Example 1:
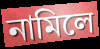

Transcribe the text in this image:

নামিলে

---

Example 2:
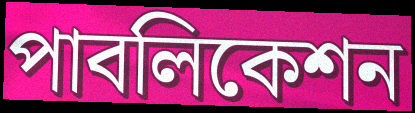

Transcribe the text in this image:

পাবলিকেশন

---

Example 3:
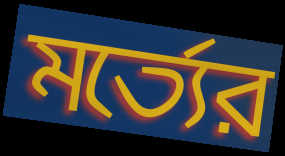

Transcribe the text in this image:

মর্ত্যের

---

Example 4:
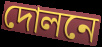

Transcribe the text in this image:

দোলনে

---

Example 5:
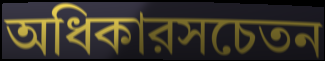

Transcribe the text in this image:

অধিকারসচেতন